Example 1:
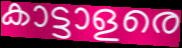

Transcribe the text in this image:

കാട്ടാളരെ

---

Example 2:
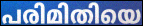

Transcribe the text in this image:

പരിമിതിയെ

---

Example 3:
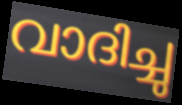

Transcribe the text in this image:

വാദിച്ചു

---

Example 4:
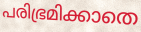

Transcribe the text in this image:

പരിഭ്രമിക്കാതെ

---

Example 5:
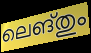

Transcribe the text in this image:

ലെങ്തും